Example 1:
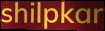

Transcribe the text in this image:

shilpkar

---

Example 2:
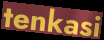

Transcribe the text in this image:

tenkasi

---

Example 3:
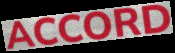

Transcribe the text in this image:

ACCORD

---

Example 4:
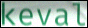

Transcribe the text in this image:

keval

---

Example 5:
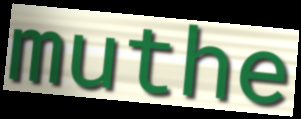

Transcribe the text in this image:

muthe